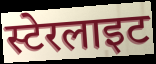
स्टेरलाइट